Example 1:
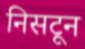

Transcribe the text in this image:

निसटून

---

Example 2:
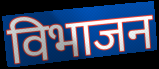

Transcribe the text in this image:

विभाजन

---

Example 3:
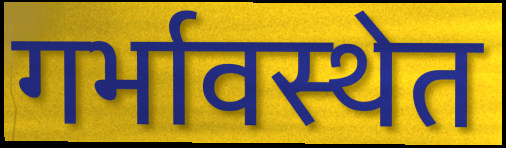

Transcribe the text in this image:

गर्भावस्थेत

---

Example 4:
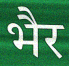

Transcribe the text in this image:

भैर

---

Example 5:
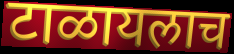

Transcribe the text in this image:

टाळायलाच